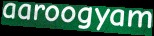
aaroogyam